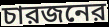
চারজনের